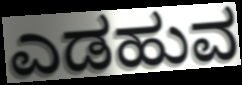
ಎಡಹುವ